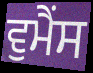
ਵੁਮੈਂਸ